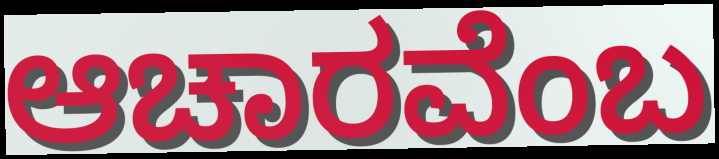
ಆಚಾರವೆಂಬ